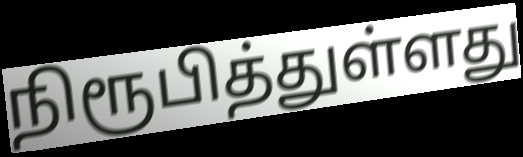
நிரூபித்துள்ளது